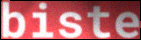
biste